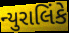
ન્યુરાલિંકે